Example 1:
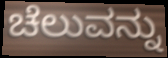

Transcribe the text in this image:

ಚೆಲುವನ್ನು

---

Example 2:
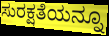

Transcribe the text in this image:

ಸುರಕ್ಷತೆಯನ್ನೂ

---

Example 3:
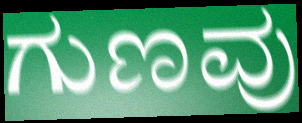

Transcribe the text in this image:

ಗುಣವು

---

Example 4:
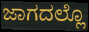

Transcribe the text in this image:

ಜಾಗದಲ್ಲೊ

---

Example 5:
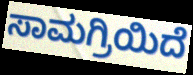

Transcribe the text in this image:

ಸಾಮಗ್ರಿಯಿದೆ